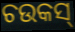
ଚଉକସ୍